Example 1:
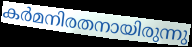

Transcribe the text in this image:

കർമനിരതനായിരുന്നു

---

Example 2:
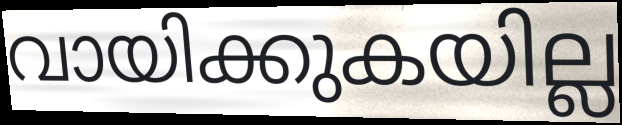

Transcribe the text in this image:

വായിക്കുകയില്ല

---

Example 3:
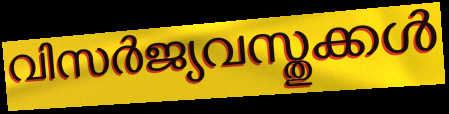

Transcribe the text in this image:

വിസർജ്യവസ്തുക്കൾ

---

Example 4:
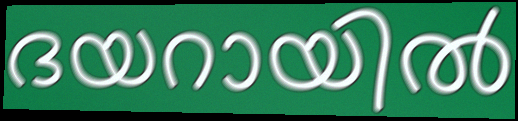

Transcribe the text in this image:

ദയറായിൽ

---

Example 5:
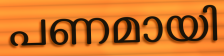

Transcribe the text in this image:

പണമായി